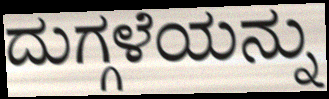
ದುಗ್ಗಳೆಯನ್ನು